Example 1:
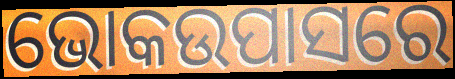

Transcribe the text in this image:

ଭୋକଉପାସରେ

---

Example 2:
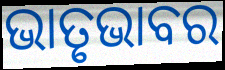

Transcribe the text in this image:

ଭାତୃଭାବର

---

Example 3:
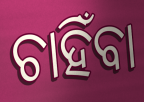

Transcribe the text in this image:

ଚାହିଁବା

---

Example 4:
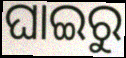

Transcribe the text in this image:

ଘାଇରୁ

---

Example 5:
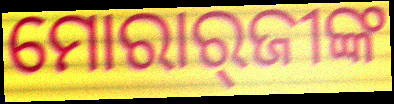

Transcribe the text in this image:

ମୋରାର୍‌ଜୀଙ୍କ